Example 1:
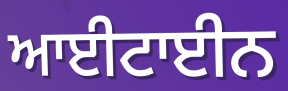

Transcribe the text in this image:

ਆਈਟਾਈਨ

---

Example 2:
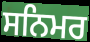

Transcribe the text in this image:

ਸਨਿਮਰ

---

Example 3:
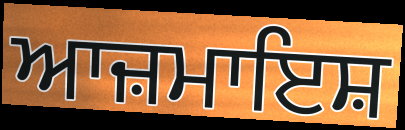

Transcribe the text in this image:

ਆਜ਼ਮਾਇਸ਼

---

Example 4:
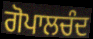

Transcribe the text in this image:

ਗੋਪਾਲਚੰਦ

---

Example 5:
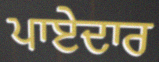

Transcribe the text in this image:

ਪਾਏਦਾਰ